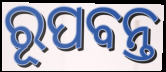
ରୂପବନ୍ତ